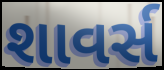
શાવર્સ